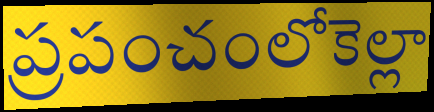
ప్రపంచంలోకెల్లా